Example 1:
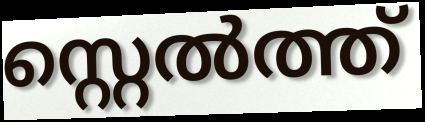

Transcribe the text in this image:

സ്റ്റെൽത്ത്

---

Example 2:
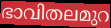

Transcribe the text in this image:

ഭാവിതലമുറ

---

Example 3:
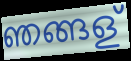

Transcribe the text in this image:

ഞങ്ങള്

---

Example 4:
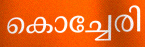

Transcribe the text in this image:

കൊച്ചേരി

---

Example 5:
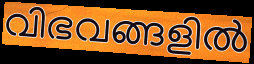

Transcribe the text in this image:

വിഭവങ്ങളിൽ